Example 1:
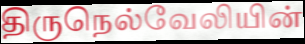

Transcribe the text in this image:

திருநெல்வேலியின்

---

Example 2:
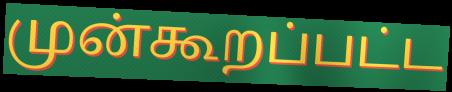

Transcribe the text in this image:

முன்கூறப்பட்ட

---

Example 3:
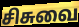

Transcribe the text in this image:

சிசுவை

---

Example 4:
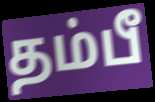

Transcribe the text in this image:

தம்பீ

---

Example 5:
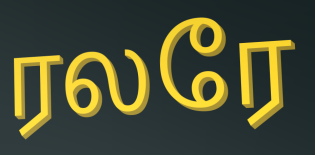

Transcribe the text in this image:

ரலரே